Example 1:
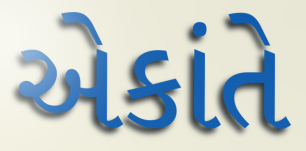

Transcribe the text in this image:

એકાંતે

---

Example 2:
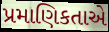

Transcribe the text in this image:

પ્રમાણિકતાએ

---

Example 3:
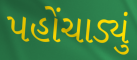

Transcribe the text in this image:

પહોંચાડ્યું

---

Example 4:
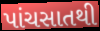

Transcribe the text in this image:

પાંચસાતથી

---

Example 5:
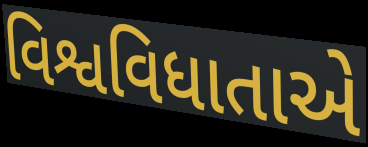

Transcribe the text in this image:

વિશ્વવિધાતાએ